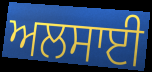
ਅਲਸਾਈ